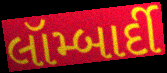
લૉમ્બાર્દી